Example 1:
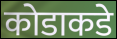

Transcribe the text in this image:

कोडाकडे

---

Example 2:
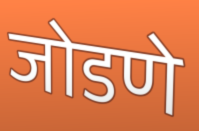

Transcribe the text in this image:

जोडणे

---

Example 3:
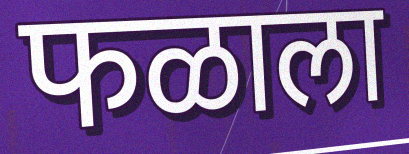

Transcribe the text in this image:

फळाला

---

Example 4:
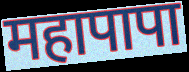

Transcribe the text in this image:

महापापा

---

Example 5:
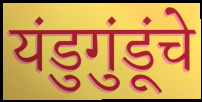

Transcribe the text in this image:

यंडुगुंडूंचे